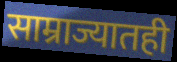
साम्राज्यातही